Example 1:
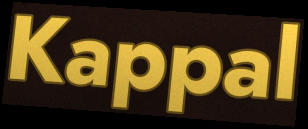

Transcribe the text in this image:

Kappal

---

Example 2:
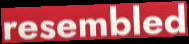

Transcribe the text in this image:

resembled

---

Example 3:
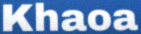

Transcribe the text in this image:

Khaoa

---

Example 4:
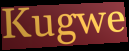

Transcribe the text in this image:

Kugwe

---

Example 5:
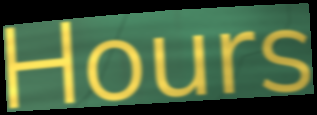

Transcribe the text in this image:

Hours